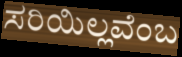
ಸರಿಯಿಲ್ಲವೆಂಬ